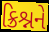
ક્રિશ્નને